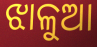
ଝାଳୁଆ